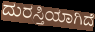
ದುರಸ್ತಿಯಾಗಿದೆ